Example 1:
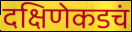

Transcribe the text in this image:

दक्षिणेकडचं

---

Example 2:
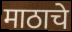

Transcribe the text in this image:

माठाचे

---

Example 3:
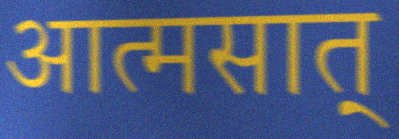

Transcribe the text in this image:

आत्मसात्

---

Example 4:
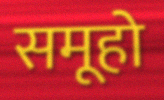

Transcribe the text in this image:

समूहो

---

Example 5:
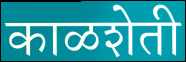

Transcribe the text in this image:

काळशेती